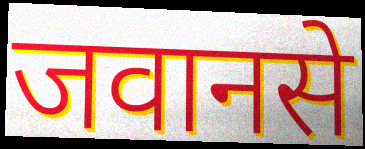
जवानसे